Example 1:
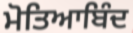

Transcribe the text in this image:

ਮੋਤਿਆਬਿੰਦ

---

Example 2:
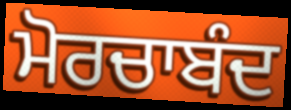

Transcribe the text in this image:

ਮੋਰਚਾਬੰਦ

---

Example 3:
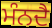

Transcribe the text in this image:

ਮੰਨਦੈ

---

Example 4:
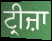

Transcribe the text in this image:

ਟ੍ਰੀਜ਼ਾ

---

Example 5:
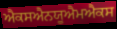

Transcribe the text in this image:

ਐਕਸਐਨਯੂਐਮਐਕਸ